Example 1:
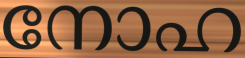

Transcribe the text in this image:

നോഹ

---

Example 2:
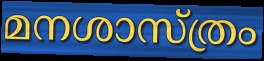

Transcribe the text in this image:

മനശാസ്ത്രം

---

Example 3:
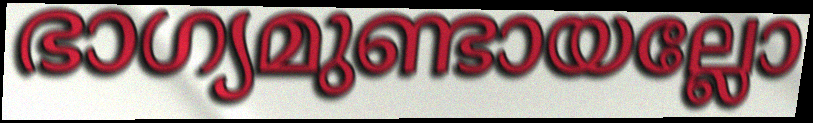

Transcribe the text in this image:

ഭാഗ്യമുണ്ടായല്ലോ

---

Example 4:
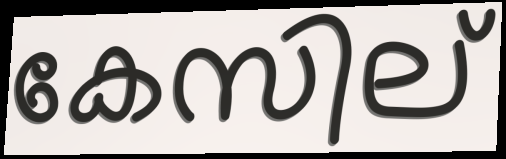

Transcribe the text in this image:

കേസില്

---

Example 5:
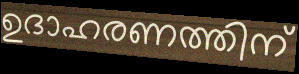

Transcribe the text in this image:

ഉദാഹരണത്തിന്